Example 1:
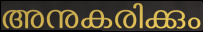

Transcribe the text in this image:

അനുകരിക്കും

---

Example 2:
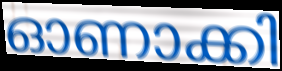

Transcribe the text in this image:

ഓണാക്കി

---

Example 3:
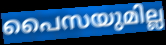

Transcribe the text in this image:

പൈസയുമില്ല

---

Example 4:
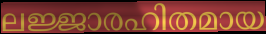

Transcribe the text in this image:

ലജ്ജാരഹിതമായ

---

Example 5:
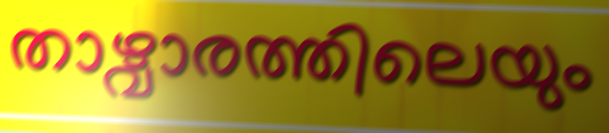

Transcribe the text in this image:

താഴ്വാരത്തിലെയും